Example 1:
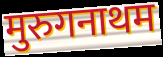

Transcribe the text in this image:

मुरुगनाथम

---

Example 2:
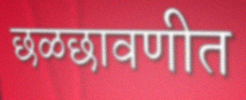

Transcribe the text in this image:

छळछावणीत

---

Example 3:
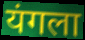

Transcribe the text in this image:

यंगला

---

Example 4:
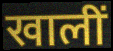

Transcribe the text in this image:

खालीं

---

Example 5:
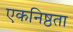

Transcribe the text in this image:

एकनिष्ठता